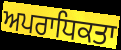
ਅਪਰਾਧਿਕਤਾ